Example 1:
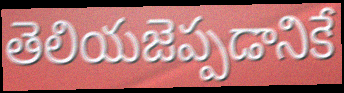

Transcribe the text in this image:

తెలియజెప్పడానికే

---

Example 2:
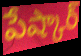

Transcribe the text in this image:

పేష్కార్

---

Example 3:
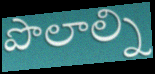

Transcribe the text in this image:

పొలాల్ని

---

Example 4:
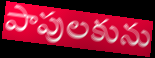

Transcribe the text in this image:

పాపులకును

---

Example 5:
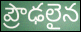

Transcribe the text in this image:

ప్రౌఢలైన